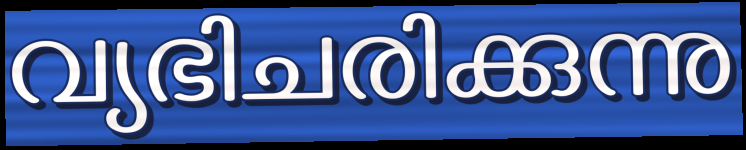
വ്യഭിചരിക്കുന്നു